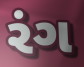
રંગ